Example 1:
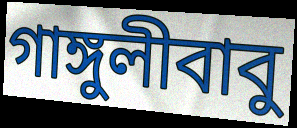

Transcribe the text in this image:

গাঙ্গুলীবাবু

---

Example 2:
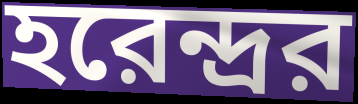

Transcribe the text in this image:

হরেন্দ্রর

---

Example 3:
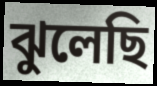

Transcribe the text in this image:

ঝুলেছি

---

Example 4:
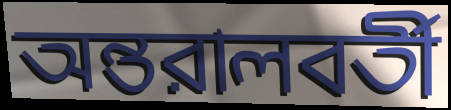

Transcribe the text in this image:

অন্তরালবর্তী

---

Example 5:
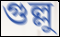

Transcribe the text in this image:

গুল্লু